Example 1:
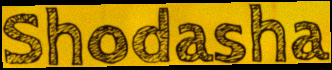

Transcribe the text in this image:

Shodasha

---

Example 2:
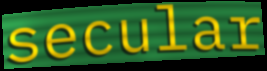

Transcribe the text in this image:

secular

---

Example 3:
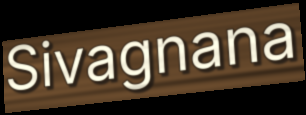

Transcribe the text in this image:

Sivagnana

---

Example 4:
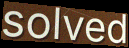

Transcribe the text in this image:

solved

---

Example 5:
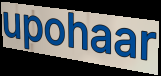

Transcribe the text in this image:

upohaar